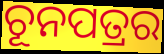
ଚୂନପତ୍ରର